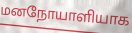
மனநோயாளியாக